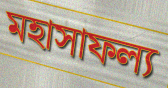
মহাসাফল্য